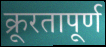
क्रूरतापूर्ण